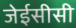
जेईसीसी